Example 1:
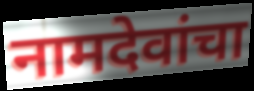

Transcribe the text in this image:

नामदेवांचा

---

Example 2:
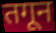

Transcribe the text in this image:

तगून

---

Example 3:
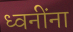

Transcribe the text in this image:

ध्वनींना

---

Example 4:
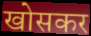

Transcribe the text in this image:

खोसकर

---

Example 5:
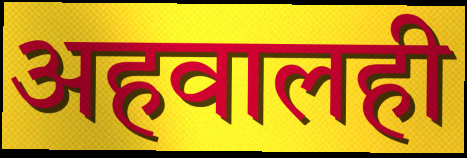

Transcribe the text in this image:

अहवालही